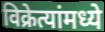
विक्रेत्यांमध्ये